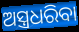
ଅସ୍ତ୍ରଧରିବା